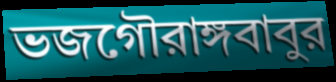
ভজগৌরাঙ্গবাবুর